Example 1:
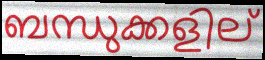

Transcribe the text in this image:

ബന്ധുക്കളില്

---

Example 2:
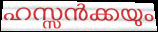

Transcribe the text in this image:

ഹസ്സൻക്കയും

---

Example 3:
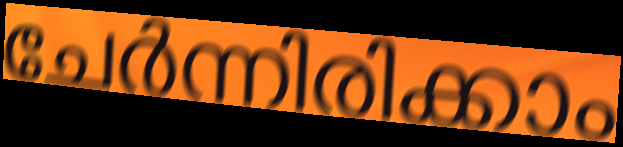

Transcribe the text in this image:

ചേർന്നിരിക്കാം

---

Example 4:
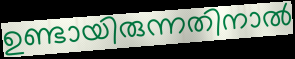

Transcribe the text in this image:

ഉണ്ടായിരുന്നതിനാൽ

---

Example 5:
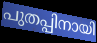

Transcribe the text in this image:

പുതപ്പിനായി